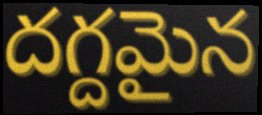
దగ్దమైన